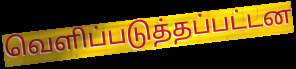
வெளிப்படுத்தப்பட்டன